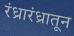
रंध्रारंध्रातून